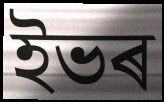
ইভৰ